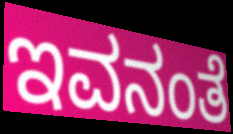
ಇವನಂತೆ